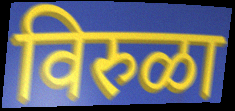
विरुळा